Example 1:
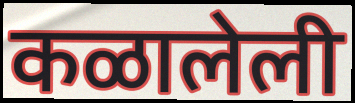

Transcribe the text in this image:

कळालेली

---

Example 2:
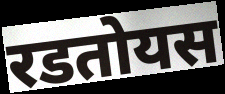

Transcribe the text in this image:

रडतोयस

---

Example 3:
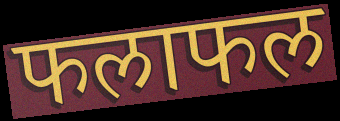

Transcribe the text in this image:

फलाफल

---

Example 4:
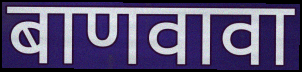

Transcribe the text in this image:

बाणवावा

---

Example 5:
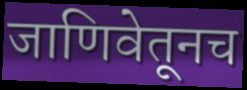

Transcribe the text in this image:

जाणिवेतूनच